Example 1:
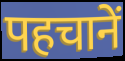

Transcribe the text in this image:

पहचानें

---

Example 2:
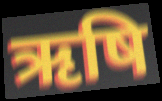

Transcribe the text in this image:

ऋषि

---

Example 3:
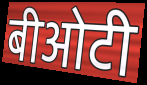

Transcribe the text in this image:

बीओटी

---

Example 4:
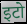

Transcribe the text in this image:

इटो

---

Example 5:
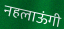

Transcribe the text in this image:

नहलाऊंगी